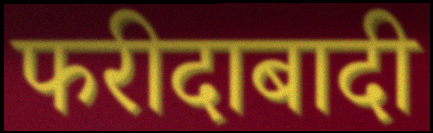
फरीदाबादी